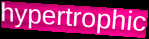
hypertrophic